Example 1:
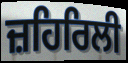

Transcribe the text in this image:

ਜ਼ਹਿਰਿਲੀ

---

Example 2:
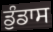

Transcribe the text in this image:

ਡੁੰਡਾਸ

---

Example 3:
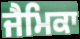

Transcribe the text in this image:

ਜੈਮਿਕਾ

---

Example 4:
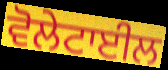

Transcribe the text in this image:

ਵੋਲੇਟਾਈਲ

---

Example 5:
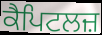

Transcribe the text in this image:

ਕੈਪਿਟਲਜ਼